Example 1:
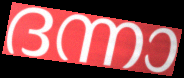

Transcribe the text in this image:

ദന്നാ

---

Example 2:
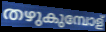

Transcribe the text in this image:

തഴുകുമ്പോള്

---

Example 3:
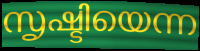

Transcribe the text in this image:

സൃഷ്ടിയെന്ന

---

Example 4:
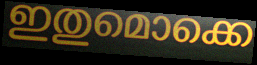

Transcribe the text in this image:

ഇതുമൊക്കെ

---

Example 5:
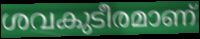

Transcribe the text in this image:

ശവകുടീരമാണ്